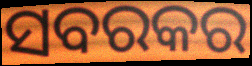
ସବରକର